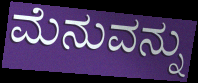
ಮೆನುವನ್ನು